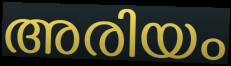
അരിയം